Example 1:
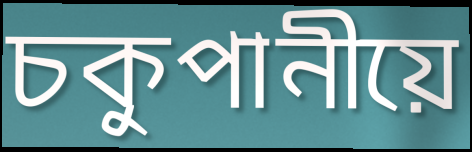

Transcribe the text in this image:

চকুপানীয়ে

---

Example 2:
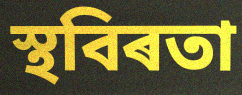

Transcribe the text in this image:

স্থবিৰতা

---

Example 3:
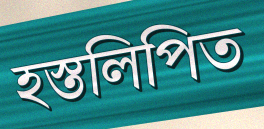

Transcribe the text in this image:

হস্তলিপিত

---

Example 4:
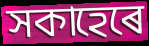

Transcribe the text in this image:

সকাহেৰে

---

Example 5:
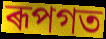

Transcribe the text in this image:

ৰূপগত